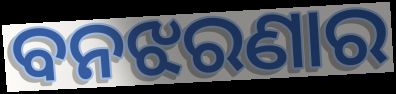
ବନଝରଣାର